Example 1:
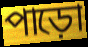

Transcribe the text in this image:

পাড়ো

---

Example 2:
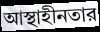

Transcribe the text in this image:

আস্থাহীনতার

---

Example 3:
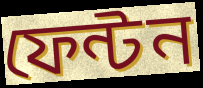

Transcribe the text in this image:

ফেন্টন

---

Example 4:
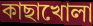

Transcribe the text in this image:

কাছাখোলা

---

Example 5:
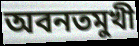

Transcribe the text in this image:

অবনতমুখী